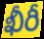
ఖీరీ